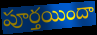
పూర్తయిందా